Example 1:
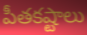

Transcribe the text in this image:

పీతకష్టాలు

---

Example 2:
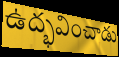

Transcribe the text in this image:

ఉద్భవించాడు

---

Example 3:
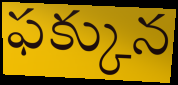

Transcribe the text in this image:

ఫక్కున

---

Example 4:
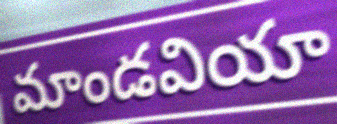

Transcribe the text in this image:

మాండవియా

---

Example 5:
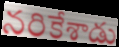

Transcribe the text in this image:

నరికేశాడు